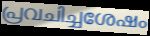
പ്രവചിച്ചശേഷം